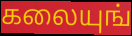
கலையுங்